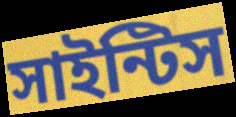
সাইন্টিস